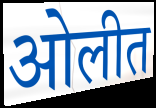
ओलीत